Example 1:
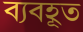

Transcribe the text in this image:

ব্যবহূত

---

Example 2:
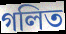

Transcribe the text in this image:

গলিত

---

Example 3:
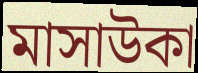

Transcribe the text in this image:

মাসাউকা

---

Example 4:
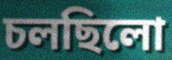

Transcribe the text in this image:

চলছিলো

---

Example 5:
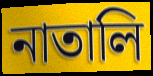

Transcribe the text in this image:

নাতালি